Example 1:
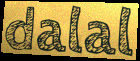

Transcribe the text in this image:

dalal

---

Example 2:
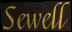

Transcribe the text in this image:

Sewell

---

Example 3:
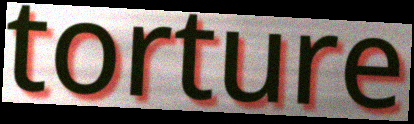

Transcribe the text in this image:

torture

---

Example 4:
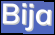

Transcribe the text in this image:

Bija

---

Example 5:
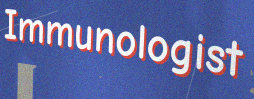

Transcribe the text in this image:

Immunologist